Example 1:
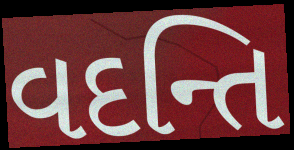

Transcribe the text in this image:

વદન્તિ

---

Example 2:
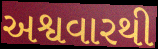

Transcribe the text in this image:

અશ્વવારથી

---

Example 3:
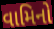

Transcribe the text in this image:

વામિનો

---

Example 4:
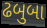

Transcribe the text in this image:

ઢબુબા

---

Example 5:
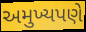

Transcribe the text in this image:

અમુખ્યપણે